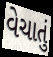
વેચાતું